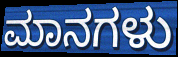
ಮಾನಗಳು